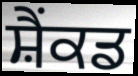
ਸ਼ੈਂਕਡ